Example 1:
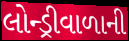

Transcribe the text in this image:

લોન્ડ્રીવાળાની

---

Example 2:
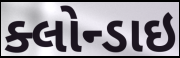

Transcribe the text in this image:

ક્લોન્ડાઇ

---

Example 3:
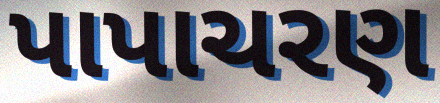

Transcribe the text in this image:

પાપાચરણ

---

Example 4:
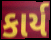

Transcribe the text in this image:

કાર્ય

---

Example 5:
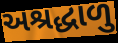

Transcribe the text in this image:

અશ્રદ્ધાળુ